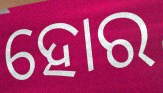
ହୋର